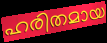
ഹരിതമായ